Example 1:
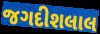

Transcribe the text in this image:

જગદીશલાલ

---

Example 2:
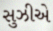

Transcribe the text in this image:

સુઝીએ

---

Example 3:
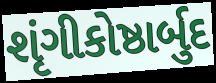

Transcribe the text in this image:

શૃંગીકોષ્ઠાર્બુદ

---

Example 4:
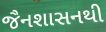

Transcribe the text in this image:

જૈનશાસનથી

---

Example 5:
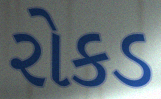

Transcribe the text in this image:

રોકડ